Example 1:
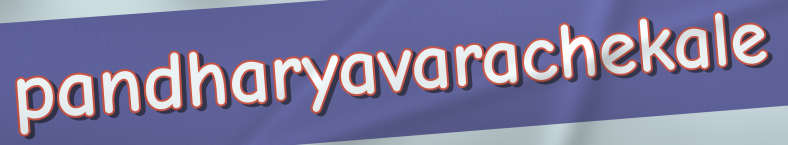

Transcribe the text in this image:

pandharyavarachekale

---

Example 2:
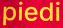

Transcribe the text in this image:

piedi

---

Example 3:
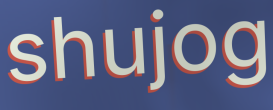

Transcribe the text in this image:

shujog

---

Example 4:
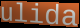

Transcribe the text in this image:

ulida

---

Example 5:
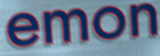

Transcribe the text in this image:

emon